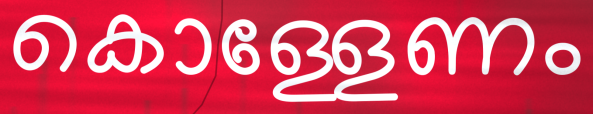
കൊള്ളേണം